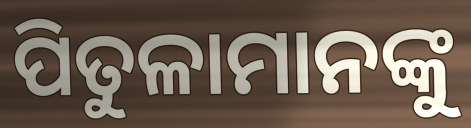
ପିତୁଳାମାନଙ୍କୁ